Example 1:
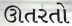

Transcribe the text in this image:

ઊતરતો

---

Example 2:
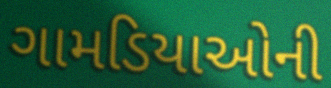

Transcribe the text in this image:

ગામડિયાઓની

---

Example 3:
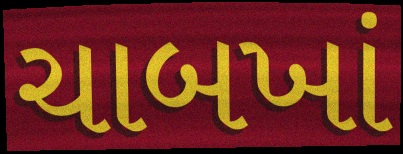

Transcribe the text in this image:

ચાબખાં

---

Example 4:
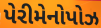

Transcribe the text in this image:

પેરીમેનોપોઝ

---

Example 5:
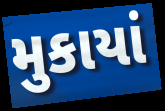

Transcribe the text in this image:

મુકાયાં